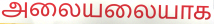
அலையலையாக